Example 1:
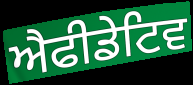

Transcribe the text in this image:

ਐਫੀਡੇਟਿਵ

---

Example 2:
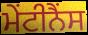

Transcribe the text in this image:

ਮੇਂਟੀਨੈਂਸ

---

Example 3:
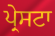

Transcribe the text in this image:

ਪ੍ਰੇਸਟਾ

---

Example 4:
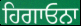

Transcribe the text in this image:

ਹਿਗਾਓਨਾ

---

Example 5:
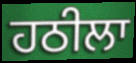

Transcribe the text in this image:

ਹਠੀਲਾ